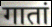
गातां